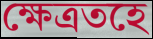
ক্ষেত্ৰতহে